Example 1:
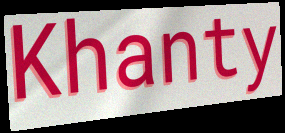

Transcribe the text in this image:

Khanty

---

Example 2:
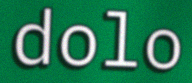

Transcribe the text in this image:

dolo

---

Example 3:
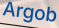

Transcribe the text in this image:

Argob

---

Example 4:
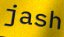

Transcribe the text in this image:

jash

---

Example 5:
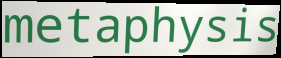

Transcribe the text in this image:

metaphysis